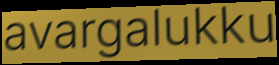
avargalukku